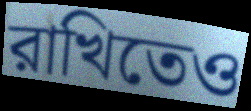
রাখিতেও